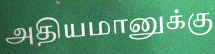
அதியமானுக்கு